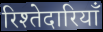
रिश्तेदारियाँ